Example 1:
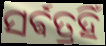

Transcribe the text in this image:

ସର୍ଵତ୍ରହିଁ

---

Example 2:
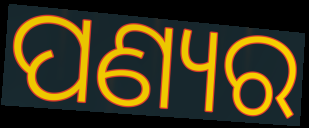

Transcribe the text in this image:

ପଣ୍ୟର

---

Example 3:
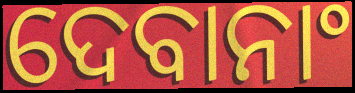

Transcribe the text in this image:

ଦେବାନାଂ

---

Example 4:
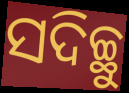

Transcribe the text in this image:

ସଦିଚ୍ଛୁ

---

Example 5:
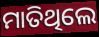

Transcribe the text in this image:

ମାତିଥିଲେ